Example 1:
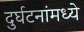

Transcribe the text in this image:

दुर्घटनांमध्ये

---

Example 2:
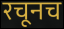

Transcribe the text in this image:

रचूनच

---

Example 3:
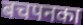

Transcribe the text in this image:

बचपनका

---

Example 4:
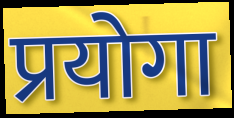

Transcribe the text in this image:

प्रयोगा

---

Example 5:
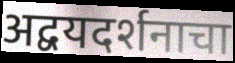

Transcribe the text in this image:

अद्वयदर्शनाचा